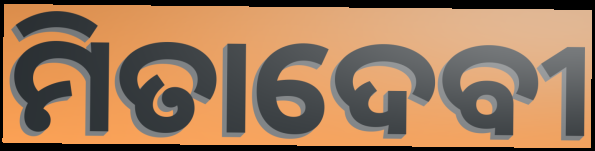
ମିତାଦେବୀ